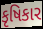
કૃષિકાર